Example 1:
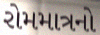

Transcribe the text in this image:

રોમમાત્રનો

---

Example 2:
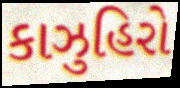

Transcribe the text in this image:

કાઝુહિરો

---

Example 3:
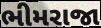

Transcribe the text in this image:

ભીમરાજા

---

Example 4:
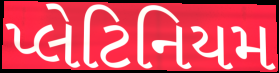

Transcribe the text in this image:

પ્લેટિનિયમ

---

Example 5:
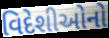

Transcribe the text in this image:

વિદેશીઓનો